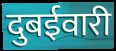
दुबईवारी